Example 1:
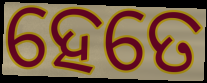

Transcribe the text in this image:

ହେତେ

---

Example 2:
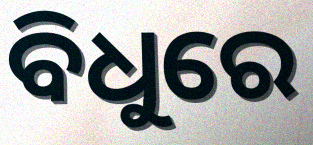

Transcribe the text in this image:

ବିଧୁରେ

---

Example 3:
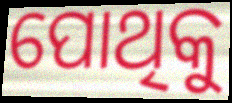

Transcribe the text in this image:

ପୋଥିକୁ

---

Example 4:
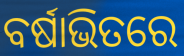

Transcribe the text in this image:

ବର୍ଷାଭିତରେ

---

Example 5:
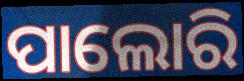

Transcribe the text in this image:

ପାଲୋରି